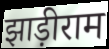
झाड़ीराम